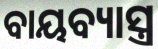
ବାୟବ୍ୟାସ୍ତ୍ର